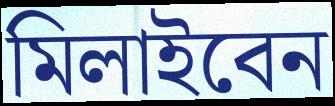
মিলাইবেন